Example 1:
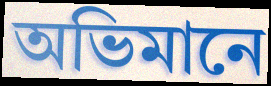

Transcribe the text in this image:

অভিমানে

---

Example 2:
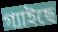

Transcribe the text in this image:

গ্যাইছে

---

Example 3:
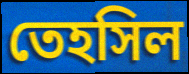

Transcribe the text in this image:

তেহসিল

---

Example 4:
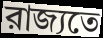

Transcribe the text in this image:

রাজ্যতে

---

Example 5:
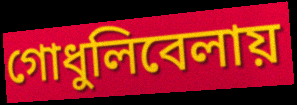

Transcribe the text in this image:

গোধুলিবেলায়